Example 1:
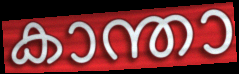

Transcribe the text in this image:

കാന്താ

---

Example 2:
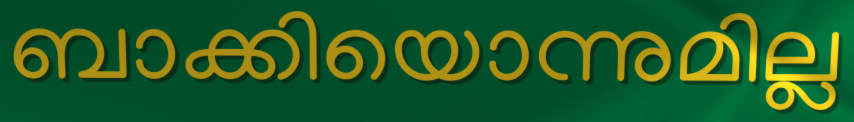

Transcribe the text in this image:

ബാക്കിയൊന്നുമില്ല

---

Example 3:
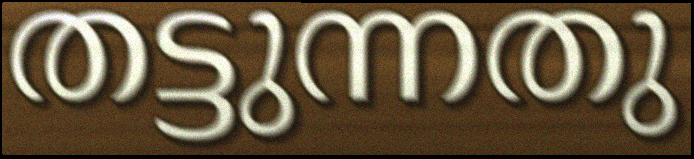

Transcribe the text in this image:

തട്ടുന്നതു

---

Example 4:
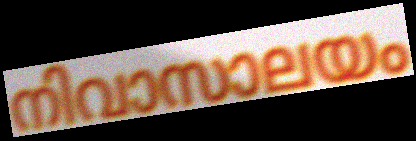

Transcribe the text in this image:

നിവാസാലയം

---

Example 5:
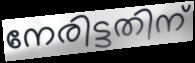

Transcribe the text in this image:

നേരിട്ടതിന്